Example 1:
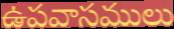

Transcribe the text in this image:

ఉపవాసములు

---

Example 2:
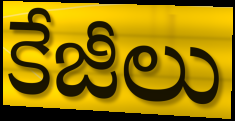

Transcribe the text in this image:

కేజీలు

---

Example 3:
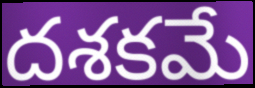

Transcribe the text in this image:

దశకమే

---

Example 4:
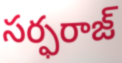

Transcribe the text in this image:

సర్ఫరాజ్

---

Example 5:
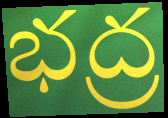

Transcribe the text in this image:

భద్ర